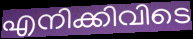
എനിക്കിവിടെ